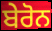
ਬੇਰੋਨ